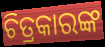
ଚିତ୍ରକାରଙ୍କ